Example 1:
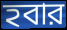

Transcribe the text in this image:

হবার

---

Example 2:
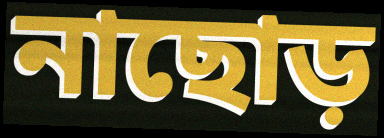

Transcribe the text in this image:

নাছোড়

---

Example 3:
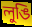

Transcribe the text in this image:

লুঙি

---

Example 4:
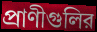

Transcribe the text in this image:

প্রাণীগুলির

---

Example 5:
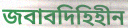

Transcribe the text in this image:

জবাবদিহিহীন